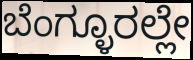
ಬೆಂಗ್ಳೂರಲ್ಲೇ